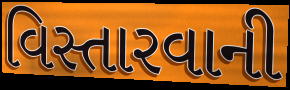
વિસ્તારવાની